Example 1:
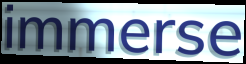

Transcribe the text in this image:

immerse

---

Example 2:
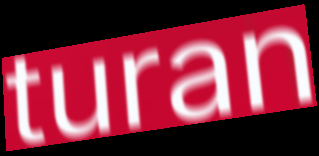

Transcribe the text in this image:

turan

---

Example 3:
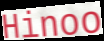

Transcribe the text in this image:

Hinoo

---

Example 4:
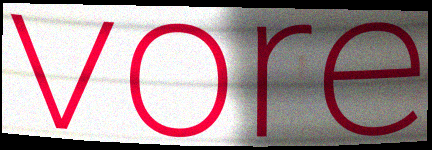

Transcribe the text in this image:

vore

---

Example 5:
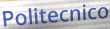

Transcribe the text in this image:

Politecnico